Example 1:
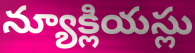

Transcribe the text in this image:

న్యూక్లియస్లు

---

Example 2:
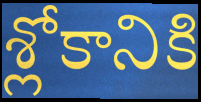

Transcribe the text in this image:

శ్లోకానికి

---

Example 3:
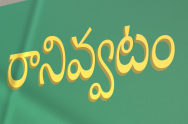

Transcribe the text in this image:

రానివ్వటం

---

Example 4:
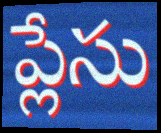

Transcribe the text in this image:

ప్లేసు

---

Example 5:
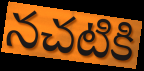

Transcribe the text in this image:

నచటికి